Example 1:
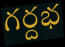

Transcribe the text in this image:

గర్దభ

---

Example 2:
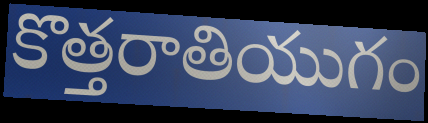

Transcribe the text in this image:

కొత్తరాతియుగం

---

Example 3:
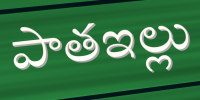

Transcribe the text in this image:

పాతఇల్లు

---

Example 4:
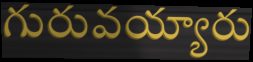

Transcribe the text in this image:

గురువయ్యారు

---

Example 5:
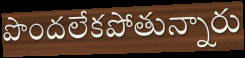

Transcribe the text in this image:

పొందలేకపోతున్నారు